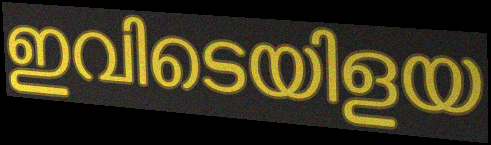
ഇവിടെയിളയ